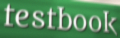
testbook